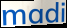
madi